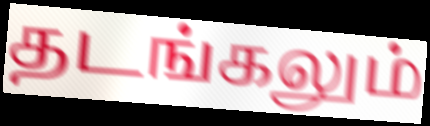
தடங்கலும்